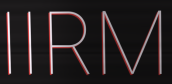
IIRM